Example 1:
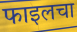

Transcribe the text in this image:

फाइलचा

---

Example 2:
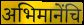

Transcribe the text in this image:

अभिमानेंचि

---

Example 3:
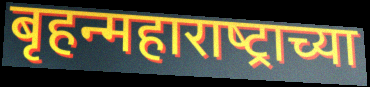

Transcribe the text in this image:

बृहन्महाराष्ट्राच्या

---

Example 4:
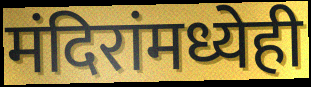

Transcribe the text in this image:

मंदिरांमध्येही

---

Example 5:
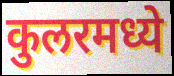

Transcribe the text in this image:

कुलरमध्ये